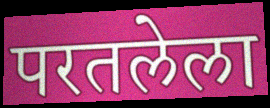
परतलेला